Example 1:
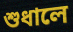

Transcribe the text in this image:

শুধালে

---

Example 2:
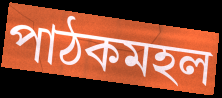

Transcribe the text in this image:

পাঠকমহল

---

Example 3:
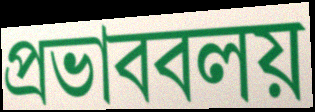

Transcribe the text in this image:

প্রভাববলয়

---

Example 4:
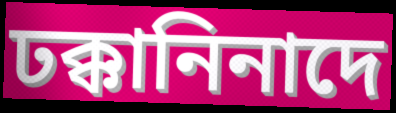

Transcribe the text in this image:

ঢক্কানিনাদে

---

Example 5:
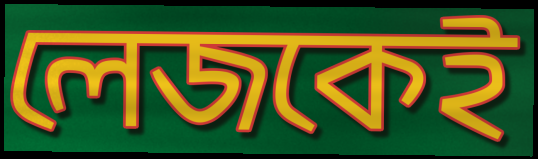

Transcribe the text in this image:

লেজকেই